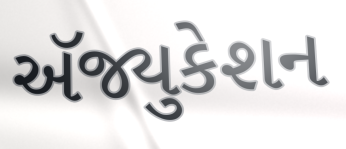
ઍજ્યુકેશન